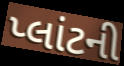
પ્લાંટની